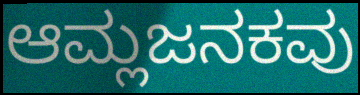
ಆಮ್ಲಜನಕವು